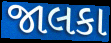
જાલકા